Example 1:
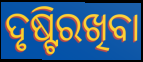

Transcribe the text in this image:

ଦୃଷ୍ଟିରଖିବା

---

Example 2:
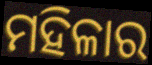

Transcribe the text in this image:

ମହିଳାର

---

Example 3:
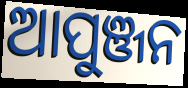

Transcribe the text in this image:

ଆପୁଞ୍ଜନ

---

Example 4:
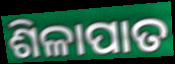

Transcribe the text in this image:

ଶିଳାପାତ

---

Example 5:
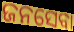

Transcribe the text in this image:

ଜନସେବା